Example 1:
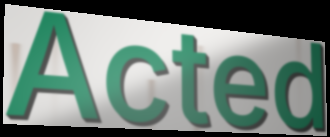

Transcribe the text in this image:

Acted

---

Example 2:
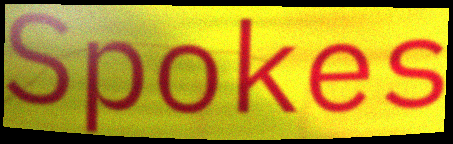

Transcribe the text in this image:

Spokes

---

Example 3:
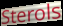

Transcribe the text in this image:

Sterols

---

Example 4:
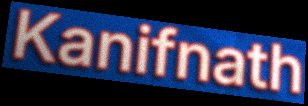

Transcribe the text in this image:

Kanifnath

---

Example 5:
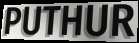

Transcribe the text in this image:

PUTHUR